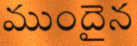
ముందైన